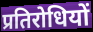
प्रतिरोधियों